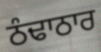
ਠੰਢਾਠਾਰ